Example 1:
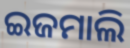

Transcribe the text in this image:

ଇଜମାଲି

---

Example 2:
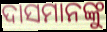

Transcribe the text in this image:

ଦାସମାନଙ୍କୁ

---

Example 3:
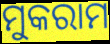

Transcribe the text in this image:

ମୁକରାମ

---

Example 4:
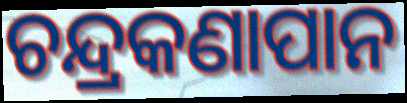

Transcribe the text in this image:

ଚନ୍ଦ୍ରକଣାପାନ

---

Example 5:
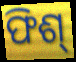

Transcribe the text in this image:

ଫିଶ୍